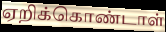
ஏறிக்கொண்டாள்